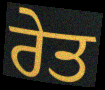
ਰੇਤ